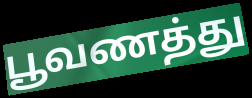
பூவணத்து